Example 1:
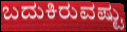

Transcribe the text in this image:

ಬದುಕಿರುವಷ್ಟು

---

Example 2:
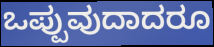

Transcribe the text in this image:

ಒಪ್ಪುವುದಾದರೂ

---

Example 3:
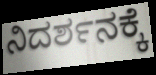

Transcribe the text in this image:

ನಿದರ್ಶನಕ್ಕೆ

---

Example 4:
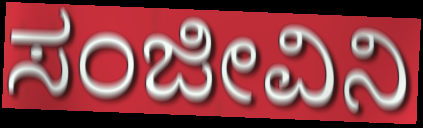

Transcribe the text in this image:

ಸಂಜೀವಿನಿ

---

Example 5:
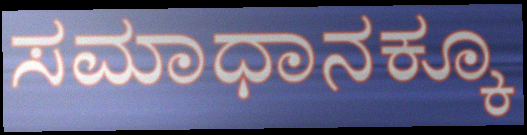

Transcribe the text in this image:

ಸಮಾಧಾನಕ್ಕೂ